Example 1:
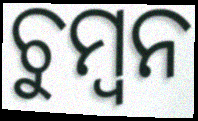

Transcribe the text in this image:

ଚୁମ୍ବନ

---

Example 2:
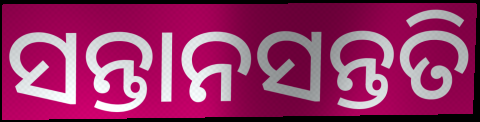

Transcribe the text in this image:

ସନ୍ତାନସନ୍ତତି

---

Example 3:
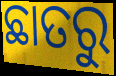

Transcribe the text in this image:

ଛାତରୁ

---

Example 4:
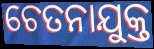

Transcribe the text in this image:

ଚେତନାଯୁକ୍ତ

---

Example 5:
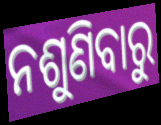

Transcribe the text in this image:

ନଶୁଣିବାରୁ